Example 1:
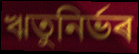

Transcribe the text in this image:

ঋতুনিৰ্ভৰ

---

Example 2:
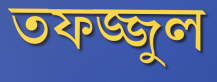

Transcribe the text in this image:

তফজ্জুল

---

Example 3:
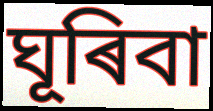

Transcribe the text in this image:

ঘূৰিবা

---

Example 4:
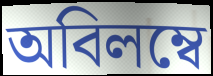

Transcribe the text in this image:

অবিলম্বে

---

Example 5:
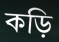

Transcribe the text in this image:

কড়ি